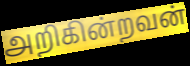
அறிகின்றவன்